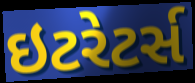
ઇટરેટર્સ